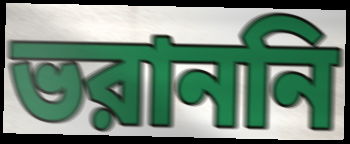
ভরাননি